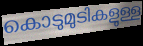
കൊടുമുടികളുള്ള